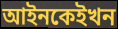
আইনকেইখন